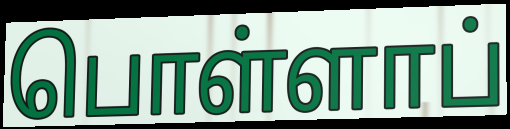
பொள்ளாப்